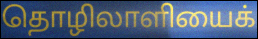
தொழிலாளியைக்